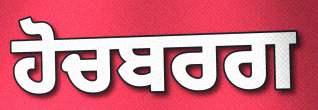
ਹੋਚਬਰਗ